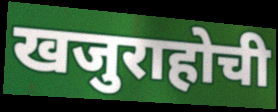
खजुराहोची